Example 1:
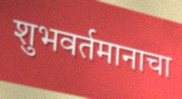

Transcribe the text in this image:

शुभवर्तमानाचा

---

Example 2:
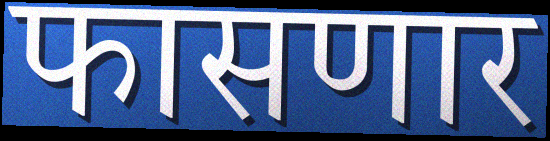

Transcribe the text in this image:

फासणार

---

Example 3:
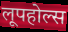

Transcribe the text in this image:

लूपहोल्स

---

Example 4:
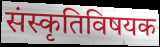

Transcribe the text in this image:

संस्कृतिविषयक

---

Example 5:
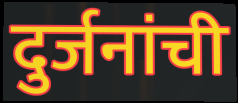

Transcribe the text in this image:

दुर्जनांची